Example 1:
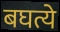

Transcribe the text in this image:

बघत्ये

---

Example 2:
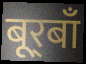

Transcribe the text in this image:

बूर्‌बाँ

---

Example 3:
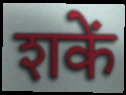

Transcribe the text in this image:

शकें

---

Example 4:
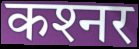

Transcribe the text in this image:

कश्‍नर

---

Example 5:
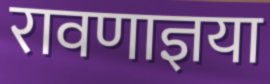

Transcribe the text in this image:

रावणाज्ञया